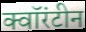
क्वॉरंटीन